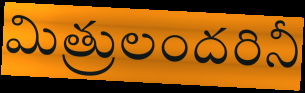
మిత్రులందరినీ